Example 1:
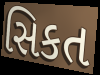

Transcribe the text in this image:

સિકત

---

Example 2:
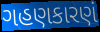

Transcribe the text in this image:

ગહણકારણં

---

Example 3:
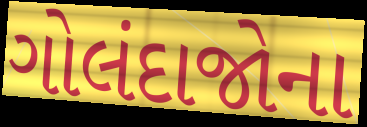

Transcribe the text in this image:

ગોલંદાજોના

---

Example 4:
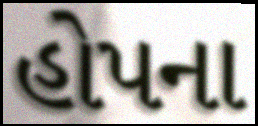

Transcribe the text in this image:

હોપના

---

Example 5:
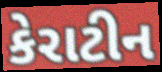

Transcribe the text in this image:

કેરાટીન